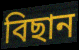
বিছান